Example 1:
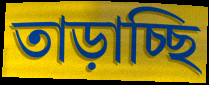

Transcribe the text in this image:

তাড়াচ্ছি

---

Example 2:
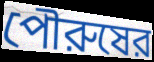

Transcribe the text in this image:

পৌরুষের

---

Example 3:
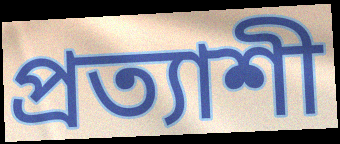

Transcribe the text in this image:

প্রত্যাশী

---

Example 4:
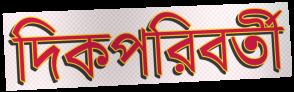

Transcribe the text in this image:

দিকপরিবর্তী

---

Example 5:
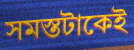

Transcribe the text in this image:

সমস্তটাকেই